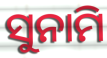
ସୁନାମି